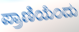
ಪ್ರಾಣಿಯೆಂದು